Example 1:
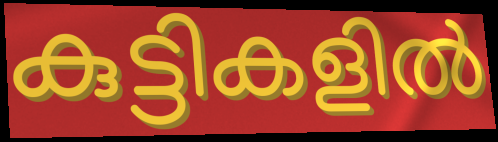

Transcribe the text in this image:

കുട്ടികളിൽ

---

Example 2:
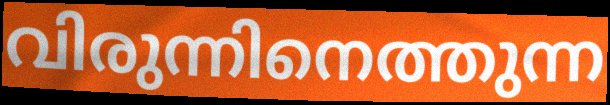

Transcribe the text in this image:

വിരുന്നിനെത്തുന്ന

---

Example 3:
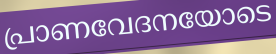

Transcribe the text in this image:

പ്രാണവേദനയോടെ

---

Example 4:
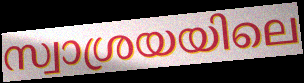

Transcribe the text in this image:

സ്വാശ്രയയിലെ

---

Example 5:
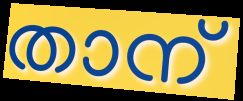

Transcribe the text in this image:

താന്